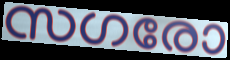
സഗരോ